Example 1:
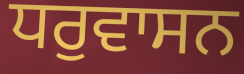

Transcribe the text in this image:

ਧਰੁਵਾਸਨ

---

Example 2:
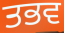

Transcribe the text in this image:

ਤਭਵ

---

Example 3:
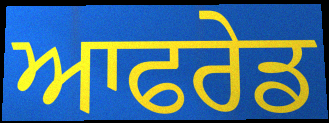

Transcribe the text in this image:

ਆਫਰੇਡ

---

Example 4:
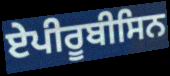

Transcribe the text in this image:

ਏਪੀਰੂਬੀਸਿਨ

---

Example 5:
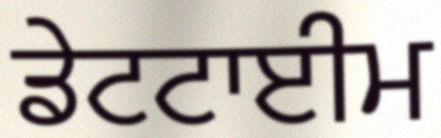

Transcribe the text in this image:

ਡੇਟਟਾਈਮ